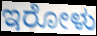
ಇರೋಳು